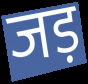
जड़